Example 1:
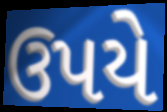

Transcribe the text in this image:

ઉપયે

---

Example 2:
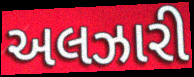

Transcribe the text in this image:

અલઝારી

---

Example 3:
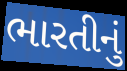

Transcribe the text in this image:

ભારતીનું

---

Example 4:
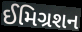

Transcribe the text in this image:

ઈમિગ્રશન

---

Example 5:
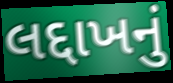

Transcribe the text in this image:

લદ્દાખનું